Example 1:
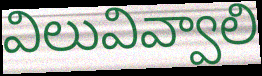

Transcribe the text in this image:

విలువివ్వాలి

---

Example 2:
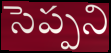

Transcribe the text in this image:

సెప్పని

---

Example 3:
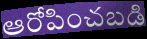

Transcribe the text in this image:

ఆరోపించబడి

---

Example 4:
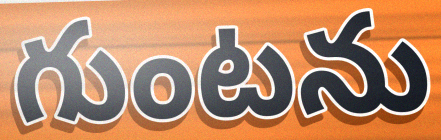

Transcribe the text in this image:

గుంటను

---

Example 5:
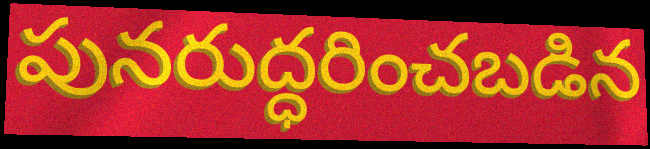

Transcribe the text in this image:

పునరుద్ధరించబడిన